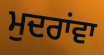
ਮੁਦਰਾਂਵਾ